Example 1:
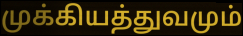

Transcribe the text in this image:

முக்கியத்துவமும்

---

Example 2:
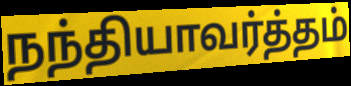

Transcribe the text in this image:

நந்தியாவர்த்தம்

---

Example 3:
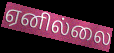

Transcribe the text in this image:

ஏனில்லை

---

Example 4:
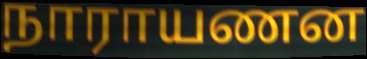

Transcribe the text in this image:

நாராயணன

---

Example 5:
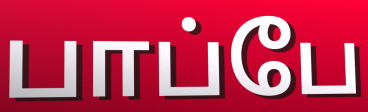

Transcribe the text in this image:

பாப்பே